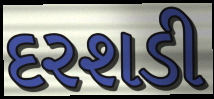
દરશડી